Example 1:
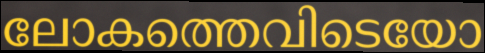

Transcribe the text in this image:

ലോകത്തെവിടെയോ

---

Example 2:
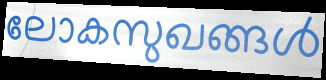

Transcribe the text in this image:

ലോകസുഖങ്ങൾ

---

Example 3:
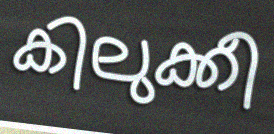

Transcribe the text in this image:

കിലുക്കീ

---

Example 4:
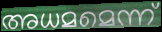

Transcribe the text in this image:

അധമമെന്ന്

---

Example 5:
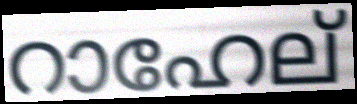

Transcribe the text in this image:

റാഹേല്